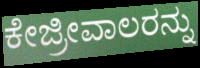
ಕೇಜ್ರೀವಾಲರನ್ನು